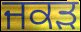
ਜਕਡ਼